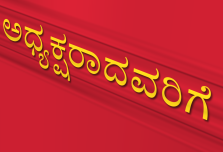
ಅಧ್ಯಕ್ಷರಾದವರಿಗೆ